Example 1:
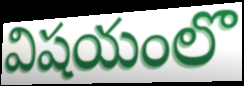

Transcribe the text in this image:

విషయంలొ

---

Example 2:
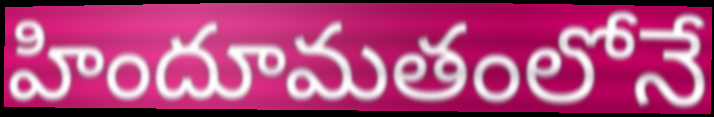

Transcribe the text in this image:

హిందూమతంలోనే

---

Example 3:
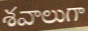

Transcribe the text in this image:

శవాలుగా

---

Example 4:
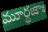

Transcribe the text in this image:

మూర్ధజాః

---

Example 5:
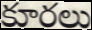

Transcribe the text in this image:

కూరలు